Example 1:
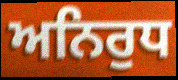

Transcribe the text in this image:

ਅਨਿਰੁਧ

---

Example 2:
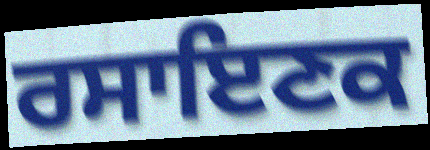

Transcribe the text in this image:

ਰਸਾਇਣਕ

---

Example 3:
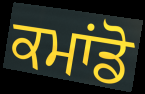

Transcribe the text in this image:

ਕਮਾਂਡੋ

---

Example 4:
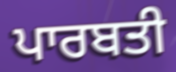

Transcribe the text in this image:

ਪਾਰਬਤੀ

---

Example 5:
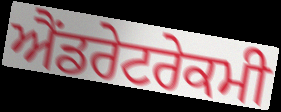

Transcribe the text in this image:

ਐਂਡਰੇਟਰੇਕਮੀ